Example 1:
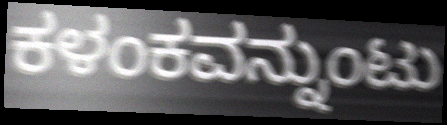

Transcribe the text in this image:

ಕಳಂಕವನ್ನುಂಟು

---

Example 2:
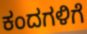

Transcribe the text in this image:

ಕಂದಗಳಿಗೆ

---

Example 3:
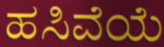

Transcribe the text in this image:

ಹಸಿವೆಯೆ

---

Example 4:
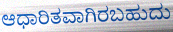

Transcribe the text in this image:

ಆಧಾರಿತವಾಗಿರಬಹುದು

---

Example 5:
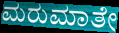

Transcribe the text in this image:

ಮರುಮಾತೇ